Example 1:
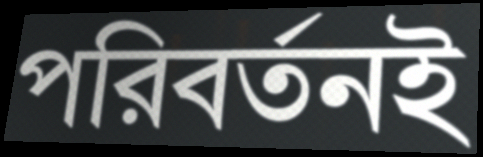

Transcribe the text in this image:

পরিবর্তনই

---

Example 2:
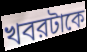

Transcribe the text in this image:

খবরটাকে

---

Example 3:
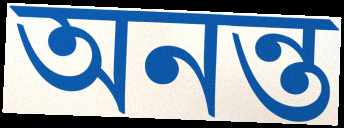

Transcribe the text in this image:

অনন্ত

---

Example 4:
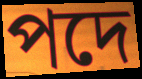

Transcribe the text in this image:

পদে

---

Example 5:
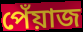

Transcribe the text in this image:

পেঁয়াজ